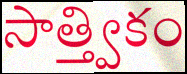
సాత్త్వికం